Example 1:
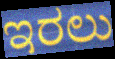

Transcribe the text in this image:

ಇರಲು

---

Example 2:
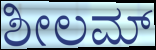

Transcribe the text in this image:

ಶೀಲಮ್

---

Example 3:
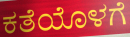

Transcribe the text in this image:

ಕತೆಯೊಳಗೆ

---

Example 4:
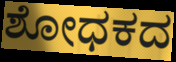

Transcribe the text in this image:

ಶೋಧಕದ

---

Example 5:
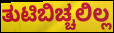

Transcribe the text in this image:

ತುಟಿಬಿಚ್ಚಲಿಲ್ಲ